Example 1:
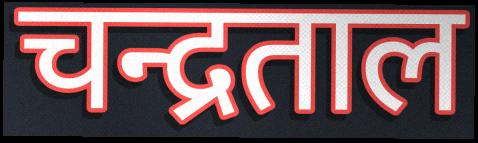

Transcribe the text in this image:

चन्द्रताल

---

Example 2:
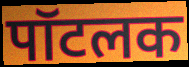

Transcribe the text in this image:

पॉटलक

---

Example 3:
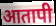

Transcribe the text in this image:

आतापी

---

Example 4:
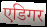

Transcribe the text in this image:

एडिगर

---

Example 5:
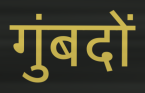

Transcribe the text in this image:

गुंबदों